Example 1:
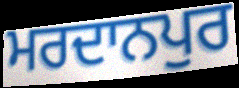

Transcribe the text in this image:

ਮਰਦਾਨਪੁਰ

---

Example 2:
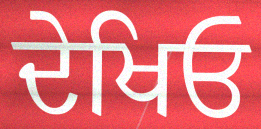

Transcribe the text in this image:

ਦੇਖਿਓ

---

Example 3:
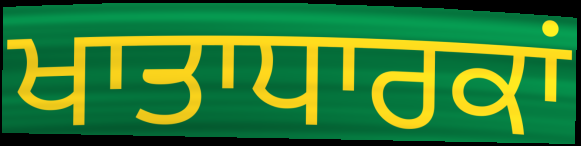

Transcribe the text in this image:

ਖਾਤਾਧਾਰਕਾਂ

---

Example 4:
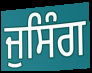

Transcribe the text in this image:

ਜੁਸਿੰਗ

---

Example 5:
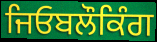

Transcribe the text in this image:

ਜਿਓਬਲੌਕਿੰਗ